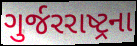
ગુર્જરરાષ્ટ્રના